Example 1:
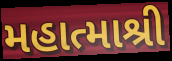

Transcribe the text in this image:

મહાત્માશ્રી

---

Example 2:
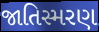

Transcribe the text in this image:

જાતિસ્મરણ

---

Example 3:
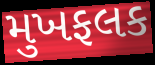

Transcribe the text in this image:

મુખફલક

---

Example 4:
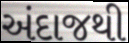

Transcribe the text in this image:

અંદાજથી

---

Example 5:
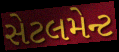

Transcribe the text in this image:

સેટલમેન્ટ